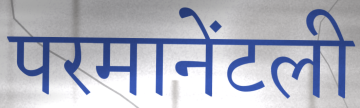
परमानेंटली